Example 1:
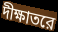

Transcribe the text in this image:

দীক্ষাতরে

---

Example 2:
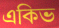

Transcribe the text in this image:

একিভ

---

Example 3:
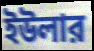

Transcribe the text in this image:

ইউলার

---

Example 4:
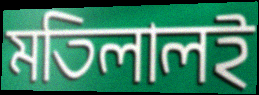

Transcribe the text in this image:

মতিলালই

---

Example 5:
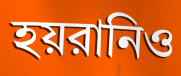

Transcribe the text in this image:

হয়রানিও